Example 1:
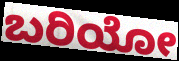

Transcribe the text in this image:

ಬರಿಯೋ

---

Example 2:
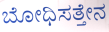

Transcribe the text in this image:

ಬೋಧಿಸತ್ತೇನ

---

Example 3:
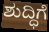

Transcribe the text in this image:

ಶುದ್ಧಿಗೆ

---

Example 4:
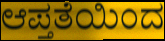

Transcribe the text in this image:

ಆಪ್ತತೆಯಿಂದ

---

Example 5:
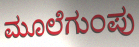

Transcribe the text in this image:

ಮೂಲೆಗುಂಪು